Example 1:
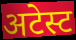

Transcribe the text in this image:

अटेस्ट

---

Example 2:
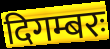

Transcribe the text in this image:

दिगम्बरः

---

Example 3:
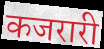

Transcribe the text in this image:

कजरारी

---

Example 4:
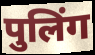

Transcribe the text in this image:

पुलिंग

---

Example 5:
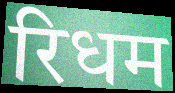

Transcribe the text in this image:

रिधम